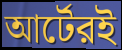
আর্টেরই